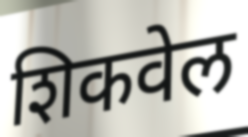
शिकवेल